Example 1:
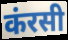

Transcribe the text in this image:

कंरसी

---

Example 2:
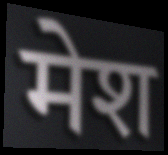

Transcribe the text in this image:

मेश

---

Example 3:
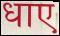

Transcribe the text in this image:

धाए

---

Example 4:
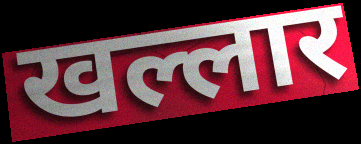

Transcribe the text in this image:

खल्लार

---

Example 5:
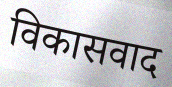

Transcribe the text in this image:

विकासवाद